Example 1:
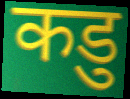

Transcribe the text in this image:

कडु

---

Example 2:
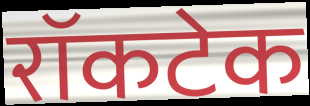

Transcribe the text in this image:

रॉकटेक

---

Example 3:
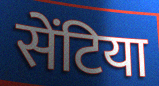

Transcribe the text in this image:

सेंटिया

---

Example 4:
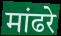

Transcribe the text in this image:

मांढरे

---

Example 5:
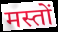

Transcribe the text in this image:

मस्तों